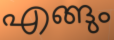
എങ്ങും